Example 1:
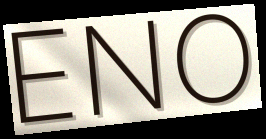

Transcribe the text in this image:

ENO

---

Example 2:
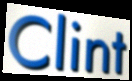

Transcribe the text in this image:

Clint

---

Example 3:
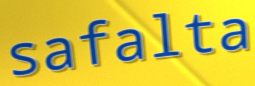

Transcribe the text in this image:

safalta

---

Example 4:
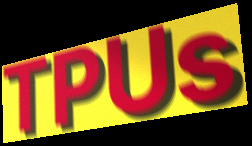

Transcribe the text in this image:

TPUs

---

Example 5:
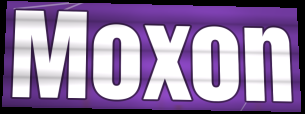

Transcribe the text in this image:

Moxon